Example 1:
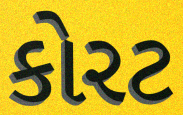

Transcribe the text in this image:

કોરટ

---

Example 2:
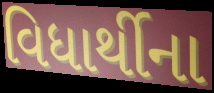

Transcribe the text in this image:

વિધાર્થીના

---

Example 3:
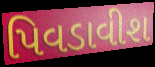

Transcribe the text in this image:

પિવડાવીશ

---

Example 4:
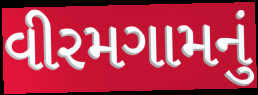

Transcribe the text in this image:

વીરમગામનું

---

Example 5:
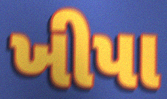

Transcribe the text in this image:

ખીપા